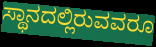
ಸ್ಥಾನದಲ್ಲಿರುವವರೂ